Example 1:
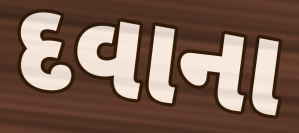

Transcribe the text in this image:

દવાના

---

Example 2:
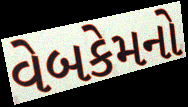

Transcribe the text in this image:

વેબકેમનો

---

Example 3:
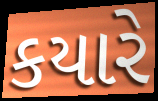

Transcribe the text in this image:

કયારે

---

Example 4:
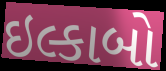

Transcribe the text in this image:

ઇલ્કાબો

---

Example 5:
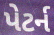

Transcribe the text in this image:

પેટર્ન